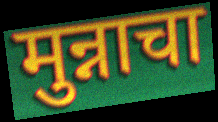
मुन्नाचा